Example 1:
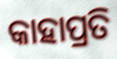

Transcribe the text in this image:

କାହାପ୍ରତି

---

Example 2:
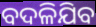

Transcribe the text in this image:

ବଦଳିଯିବ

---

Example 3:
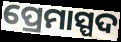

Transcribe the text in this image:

ପ୍ରେମାସ୍ପଦ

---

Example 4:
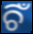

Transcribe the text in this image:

ଚିଁ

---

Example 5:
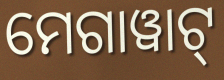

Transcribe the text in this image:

ମେଗାୱାଟ୍